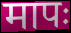
मापः